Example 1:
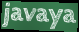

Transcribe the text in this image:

javaya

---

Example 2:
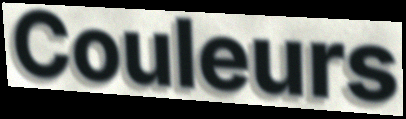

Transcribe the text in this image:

Couleurs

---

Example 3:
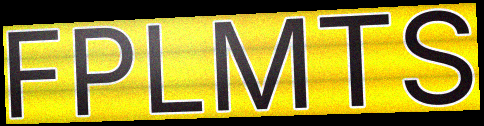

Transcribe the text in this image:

FPLMTS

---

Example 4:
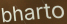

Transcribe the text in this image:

bharto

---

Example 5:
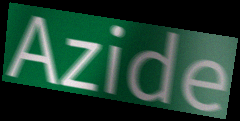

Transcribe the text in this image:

Azide